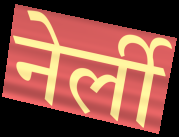
नेर्ली